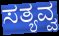
ಸತ್ಯವ್ವ